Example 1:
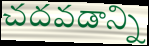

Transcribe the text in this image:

చదవడాన్ని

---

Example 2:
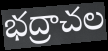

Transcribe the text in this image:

భద్రాచల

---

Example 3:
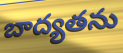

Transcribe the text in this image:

బాద్యతను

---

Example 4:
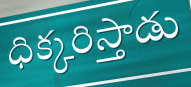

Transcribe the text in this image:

ధిక్కరిస్తాడు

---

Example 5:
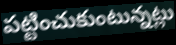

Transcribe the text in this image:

పట్టించుకుంటున్నట్లు